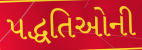
પદ્ધતિઓની